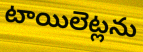
టాయిలెట్లను